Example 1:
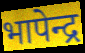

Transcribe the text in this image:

भापेन्द्र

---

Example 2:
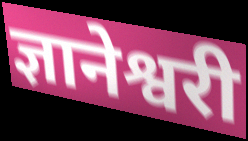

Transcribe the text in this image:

ज्ञानेश्वरी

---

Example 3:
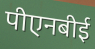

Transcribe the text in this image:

पीएनबीई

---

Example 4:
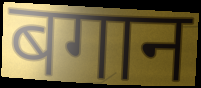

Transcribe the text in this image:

बगान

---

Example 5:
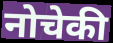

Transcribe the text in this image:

नोचेकी